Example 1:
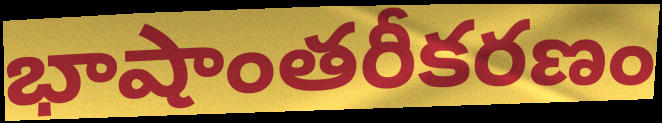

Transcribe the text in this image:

భాషాంతరీకరణం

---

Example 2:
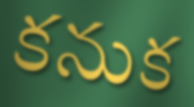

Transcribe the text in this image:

కనుక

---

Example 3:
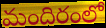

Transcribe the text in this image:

మందిరంలో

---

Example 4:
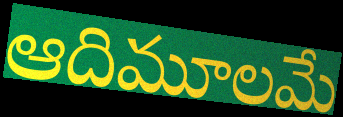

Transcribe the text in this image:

ఆదిమూలమే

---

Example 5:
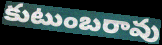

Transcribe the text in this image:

కుటుంబరావు